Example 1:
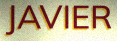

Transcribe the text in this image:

JAVIER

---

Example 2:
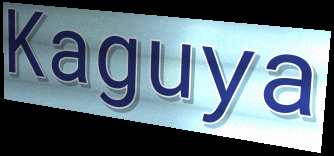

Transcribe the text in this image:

Kaguya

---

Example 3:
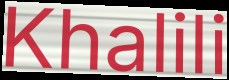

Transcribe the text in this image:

Khalili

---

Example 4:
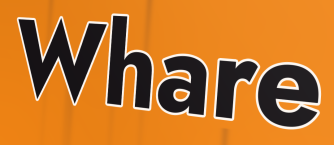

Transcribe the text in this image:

Whare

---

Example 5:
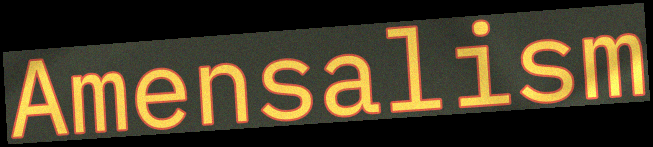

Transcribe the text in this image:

Amensalism